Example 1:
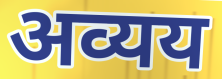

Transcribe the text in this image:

अव्यय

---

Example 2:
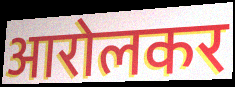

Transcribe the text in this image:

आरोलकर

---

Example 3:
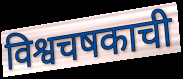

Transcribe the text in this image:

विश्वचषकाची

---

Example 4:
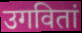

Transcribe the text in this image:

उगवितां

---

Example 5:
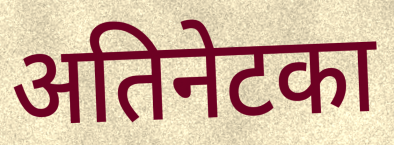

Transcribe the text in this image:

अतिनेटका